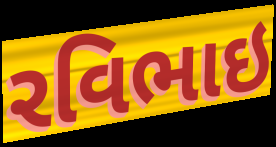
રવિભાઇ